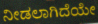
ನೀಡಲಾಗಿದೆಯೇ